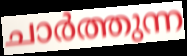
ചാർത്തുന്ന